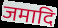
जमादि